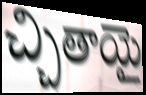
చ్చితాయై